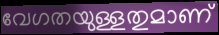
വേഗതയുള്ളതുമാണ്